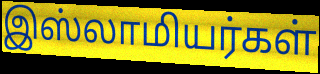
இஸ்லாமியர்கள்